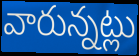
వారున్నట్లు